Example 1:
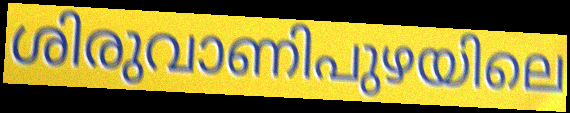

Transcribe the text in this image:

ശിരുവാണിപുഴയിലെ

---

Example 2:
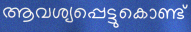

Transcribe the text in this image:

ആവശ്യപ്പെട്ടുകൊണ്ട്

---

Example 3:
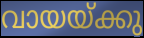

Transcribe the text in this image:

വായയ്ക്കു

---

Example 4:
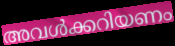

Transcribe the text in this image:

അവൾക്കറിയണം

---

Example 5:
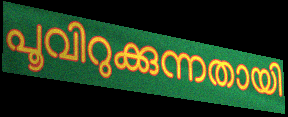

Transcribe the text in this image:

പൂവിറുക്കുന്നതായി